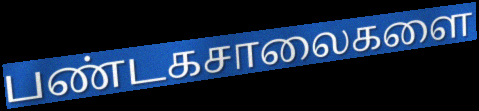
பண்டகசாலைகளை